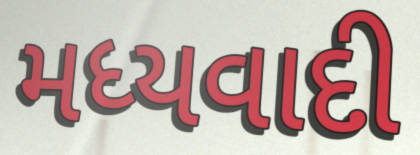
મધ્યવાદી